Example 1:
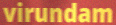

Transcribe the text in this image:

virundam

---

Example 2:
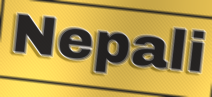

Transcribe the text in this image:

Nepali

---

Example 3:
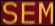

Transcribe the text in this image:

SEM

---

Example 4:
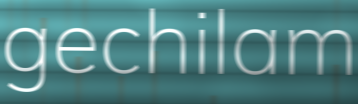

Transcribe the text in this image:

gechilam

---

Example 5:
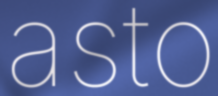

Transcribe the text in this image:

asto